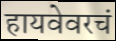
हायवेवरचं